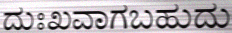
ದುಃಖವಾಗಬಹುದು